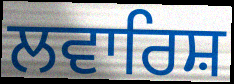
ਲਵਾਰਿਸ਼